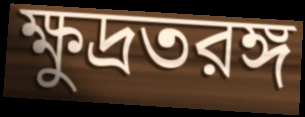
ক্ষুদ্রতরঙ্গ